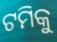
ଟମିକୁ